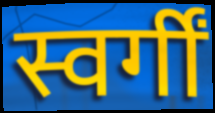
स्वर्गीं